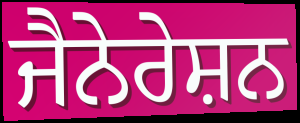
ਜੈਨੇਰੇਸ਼ਨ